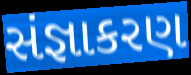
સંજ્ઞાકરણ